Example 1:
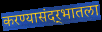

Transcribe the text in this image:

करण्यासंदर्भातला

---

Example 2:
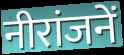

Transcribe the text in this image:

नीरांजनें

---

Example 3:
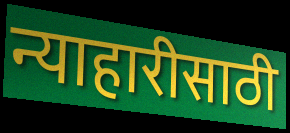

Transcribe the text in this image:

न्याहारीसाठी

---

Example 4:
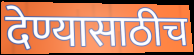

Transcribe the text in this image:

देण्यासाठीच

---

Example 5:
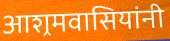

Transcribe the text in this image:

आश्रमवासियांनी